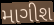
માગીશ